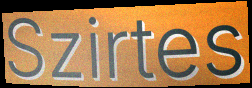
Szirtes